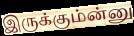
இருக்கும்ன்னு